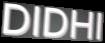
DIDHI